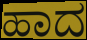
ಹಾದ